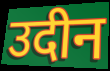
उदीन